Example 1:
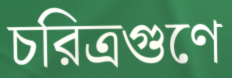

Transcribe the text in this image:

চরিত্রগুণে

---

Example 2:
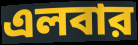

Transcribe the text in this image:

এলবার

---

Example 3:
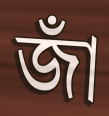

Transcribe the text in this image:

জাঁ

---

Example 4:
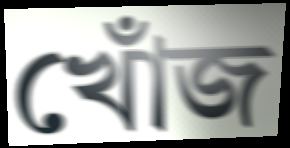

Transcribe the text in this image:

খোঁজ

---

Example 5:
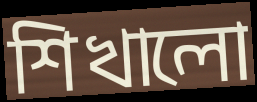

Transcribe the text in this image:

শিখালো